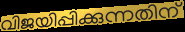
വിജയിപ്പിക്കുന്നതിന്